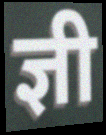
ज्ञी